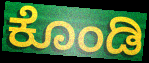
ಕೊಂಡಿ